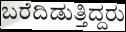
ಬರೆದಿಡುತ್ತಿದ್ದರು